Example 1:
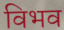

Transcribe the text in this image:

विभव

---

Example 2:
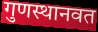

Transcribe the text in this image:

गुणस्थानवत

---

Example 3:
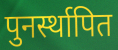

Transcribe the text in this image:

पुनर्स्थापित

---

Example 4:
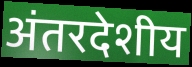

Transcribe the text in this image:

अंतरदेशीय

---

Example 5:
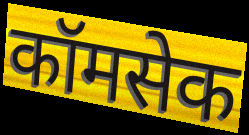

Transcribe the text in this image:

कॉमसेक